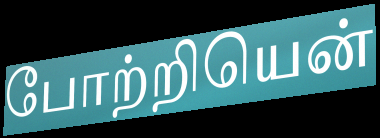
போற்றியென்